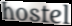
hostel